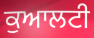
ਕੁਆਲਟੀ